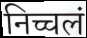
निच्चलं